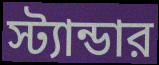
স্ট্যান্ডার